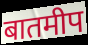
बातमीप